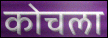
कोचला